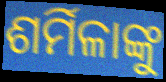
ଶର୍ମିଳାଙ୍କୁ